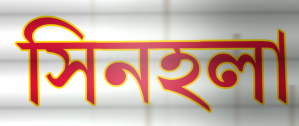
সিনহলা